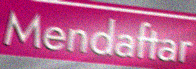
Mendaftar